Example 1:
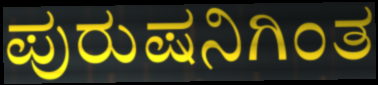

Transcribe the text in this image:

ಪುರುಷನಿಗಿಂತ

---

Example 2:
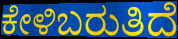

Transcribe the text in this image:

ಕೇಳಿಬರುತಿದೆ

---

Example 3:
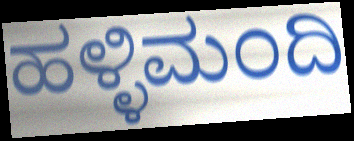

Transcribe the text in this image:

ಹಳ್ಳಿಮಂದಿ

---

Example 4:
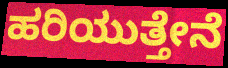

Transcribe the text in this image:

ಹರಿಯುತ್ತೇನೆ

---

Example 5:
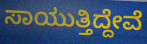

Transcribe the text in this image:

ಸಾಯುತ್ತಿದ್ದೇವೆ